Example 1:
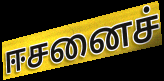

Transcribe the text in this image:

ஈசனைச்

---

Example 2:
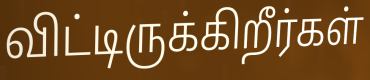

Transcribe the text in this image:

விட்டிருக்கிறீர்கள்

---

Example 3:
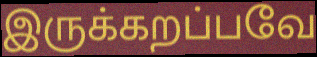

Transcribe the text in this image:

இருக்கறப்பவே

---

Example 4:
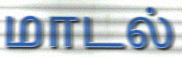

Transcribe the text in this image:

மாடல்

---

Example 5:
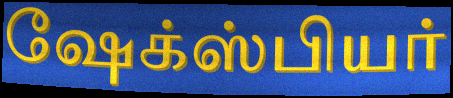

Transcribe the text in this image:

ஷேக்ஸ்பியர்